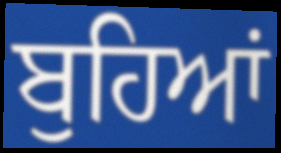
ਬੁਹਿਆਂ